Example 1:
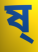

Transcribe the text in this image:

ষ্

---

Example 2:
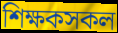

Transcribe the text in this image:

শিক্ষকসকল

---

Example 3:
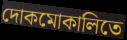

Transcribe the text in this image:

দোকমোকালিতে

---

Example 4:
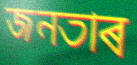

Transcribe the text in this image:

জনতাৰ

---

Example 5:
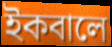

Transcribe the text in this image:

ইকবালে